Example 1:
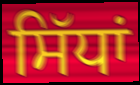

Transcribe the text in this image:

ਸਿੱਧਾਂ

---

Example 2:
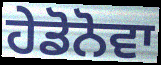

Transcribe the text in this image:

ਹੇਡੋਨੋਵਾ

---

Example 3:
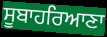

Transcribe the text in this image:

ਸੂਬਾਹਰਿਆਣਾ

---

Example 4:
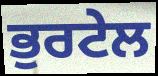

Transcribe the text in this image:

ਭੁਰਟੇਲ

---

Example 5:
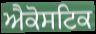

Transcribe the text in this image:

ਐਕੋਸਟਿਕ